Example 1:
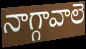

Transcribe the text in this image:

నాగ్గావాలె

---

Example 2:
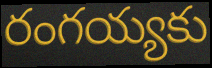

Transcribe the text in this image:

రంగయ్యకు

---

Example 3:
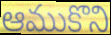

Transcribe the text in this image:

ఆముకొని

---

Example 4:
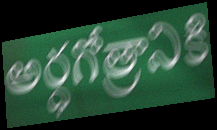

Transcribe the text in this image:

అర్ధగోత్రానికి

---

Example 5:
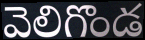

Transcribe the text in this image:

వెలిగొండ